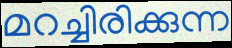
മറച്ചിരിക്കുന്ന